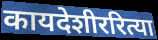
कायदेशीररित्या